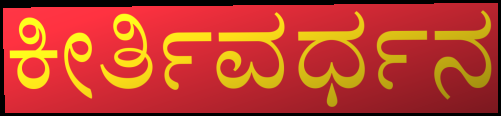
ಕೀರ್ತಿವರ್ಧನ